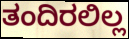
ತಂದಿರಲಿಲ್ಲ